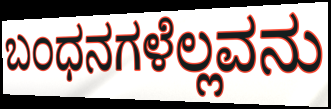
ಬಂಧನಗಳೆಲ್ಲವನು